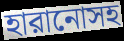
হারানোসহ